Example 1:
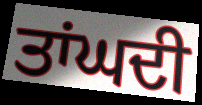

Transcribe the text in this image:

ਤਾਂਘਦੀ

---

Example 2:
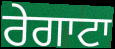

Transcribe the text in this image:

ਰੇਗਾਟਾ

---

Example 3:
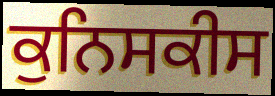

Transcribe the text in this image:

ਕੁਨਿਸਕੀਸ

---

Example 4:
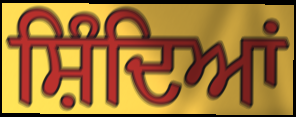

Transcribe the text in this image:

ਸ਼ਿੰਦਿਆਂ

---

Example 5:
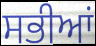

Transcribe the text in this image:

ਸਭੀਆਂ